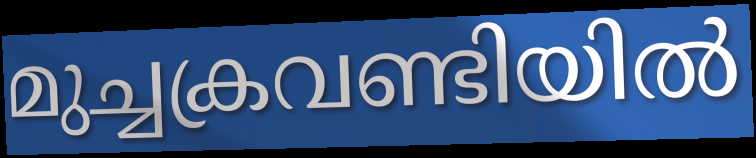
മുച്ചക്രവണ്ടിയിൽ